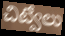
చిట్వేలు